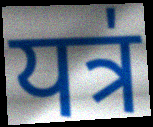
यत्र॑